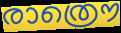
രാത്രൌ